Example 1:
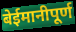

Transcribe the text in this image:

बेईमानीपूर्ण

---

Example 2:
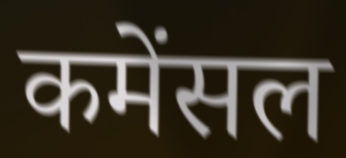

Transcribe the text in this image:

कमेंसल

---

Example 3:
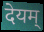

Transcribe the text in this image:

देयम्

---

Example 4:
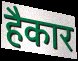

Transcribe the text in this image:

हैकार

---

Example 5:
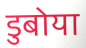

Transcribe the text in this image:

डुबोया